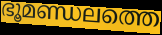
ഭൂമണ്ഡലത്തെ